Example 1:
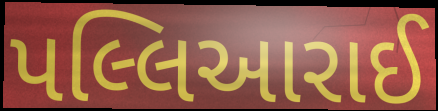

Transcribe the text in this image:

પલ્લિઆરાઈ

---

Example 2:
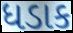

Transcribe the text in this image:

ધડાક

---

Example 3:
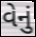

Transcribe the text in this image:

વેનું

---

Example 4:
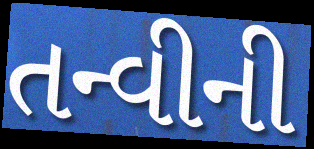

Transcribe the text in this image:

તન્વીની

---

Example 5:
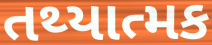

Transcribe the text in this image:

તથ્યાત્મક